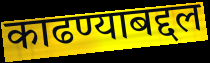
काढण्याबद्दल